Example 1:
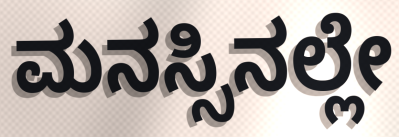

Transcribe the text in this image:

ಮನಸ್ಸಿನಲ್ಲೇ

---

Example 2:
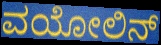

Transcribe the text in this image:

ವಯೋಲಿನ್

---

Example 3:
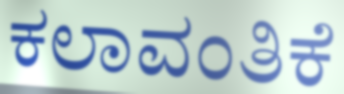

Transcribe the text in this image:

ಕಲಾವಂತಿಕೆ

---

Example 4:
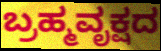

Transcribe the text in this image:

ಬ್ರಹ್ಮವೃಕ್ಷದ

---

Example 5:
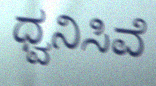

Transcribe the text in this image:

ಧ್ವನಿಸಿವೆ